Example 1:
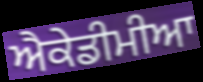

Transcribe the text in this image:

ਐਕੇਡੀਮੀਆ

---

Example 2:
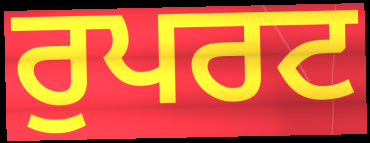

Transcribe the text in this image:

ਰੁਪਰਟ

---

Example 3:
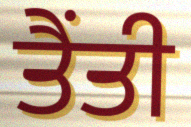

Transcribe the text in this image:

ਤੈਂਤੀ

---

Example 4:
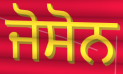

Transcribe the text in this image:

ਜੋਸੋਨ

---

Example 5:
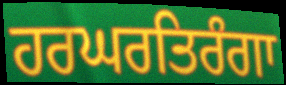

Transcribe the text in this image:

ਹਰਘਰਤਿਰੰਗਾ